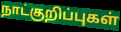
நாட்குறிப்புகள்